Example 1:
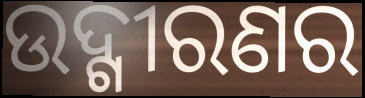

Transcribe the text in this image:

ଉଦ୍ଗୀରଣର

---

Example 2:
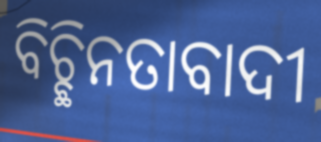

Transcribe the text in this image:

ବିଚ୍ଛିନତାବାଦୀ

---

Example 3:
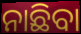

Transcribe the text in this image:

ନାଛିବା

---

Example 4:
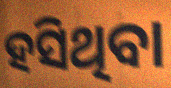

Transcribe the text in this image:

ହସିଥିବା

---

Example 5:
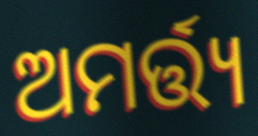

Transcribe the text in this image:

ଅମର୍ତ୍ତ୍ୟ